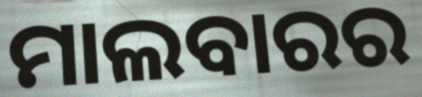
ମାଲବାରର